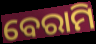
ବେରାମି